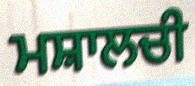
ਮਸ਼ਾਲਚੀ